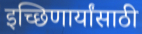
इच्छिणार्यांसाठी